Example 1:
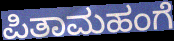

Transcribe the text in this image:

ಪಿತಾಮಹಂಗೆ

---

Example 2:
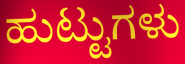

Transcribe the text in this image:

ಹುಟ್ಟುಗಳು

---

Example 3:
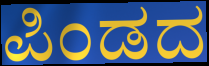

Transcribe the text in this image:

ಪಿಂಡದ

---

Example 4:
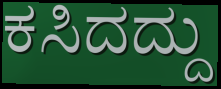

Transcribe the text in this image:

ಕಸಿದದ್ದು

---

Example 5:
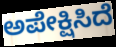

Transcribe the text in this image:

ಅಪೇಕ್ಷಿಸಿದೆ